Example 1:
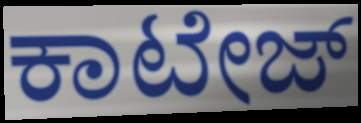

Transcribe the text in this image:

ಕಾಟೇಜ್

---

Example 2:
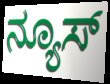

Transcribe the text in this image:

ನ್ಯೂಸ್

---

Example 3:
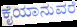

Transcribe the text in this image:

ಕೈಯಾನುವರೆ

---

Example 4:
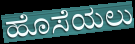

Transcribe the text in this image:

ಹೊಸೆಯಲು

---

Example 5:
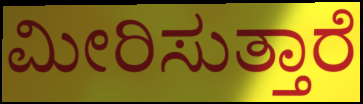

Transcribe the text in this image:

ಮೀರಿಸುತ್ತಾರೆ